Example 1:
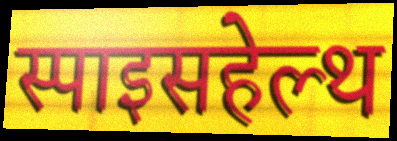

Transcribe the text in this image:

स्पाइसहेल्थ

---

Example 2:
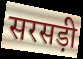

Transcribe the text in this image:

सरसड़ी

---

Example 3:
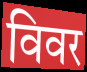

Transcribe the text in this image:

विवर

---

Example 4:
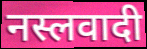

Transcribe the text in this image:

नस्लवादी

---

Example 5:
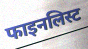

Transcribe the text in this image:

फाइनलिस्ट